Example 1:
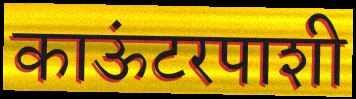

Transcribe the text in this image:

काऊंटरपाशी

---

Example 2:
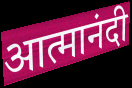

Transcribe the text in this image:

आत्मानंदी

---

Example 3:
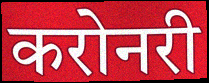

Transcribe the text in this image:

करोनरी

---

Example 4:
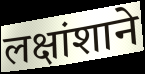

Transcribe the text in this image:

लक्षांशाने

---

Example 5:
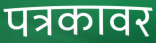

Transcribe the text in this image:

पत्रकावर